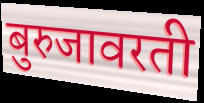
बुरुजावरती